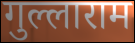
गुल्लाराम